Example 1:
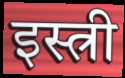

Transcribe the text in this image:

इस्त्री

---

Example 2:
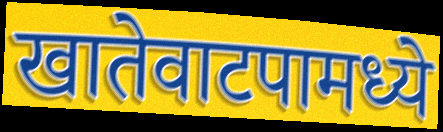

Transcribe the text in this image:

खातेवाटपामध्ये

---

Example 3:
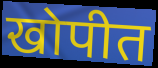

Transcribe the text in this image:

खोपीत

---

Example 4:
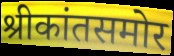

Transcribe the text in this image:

श्रीकांतसमोर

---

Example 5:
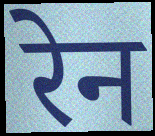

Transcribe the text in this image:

रेन